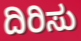
ದಿರಿಸು